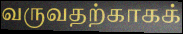
வருவதற்காகக்